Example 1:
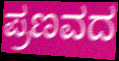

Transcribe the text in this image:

ಪ್ರಣವದ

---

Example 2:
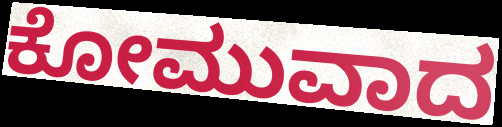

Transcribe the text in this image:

ಕೋಮುವಾದ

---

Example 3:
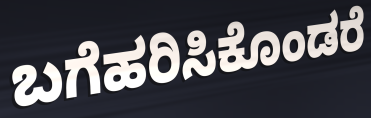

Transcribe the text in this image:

ಬಗೆಹರಿಸಿಕೊಂಡರೆ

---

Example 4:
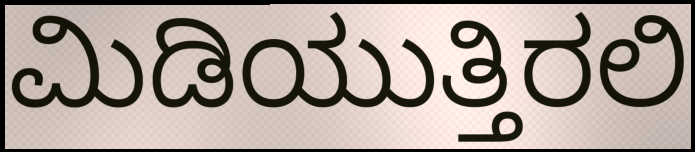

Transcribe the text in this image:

ಮಿಡಿಯುತ್ತಿರಲಿ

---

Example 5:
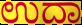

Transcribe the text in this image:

ಉದಾ